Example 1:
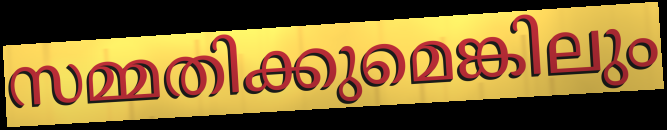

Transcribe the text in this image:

സമ്മതിക്കുമെങ്കിലും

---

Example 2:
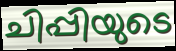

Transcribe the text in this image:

ചിപ്പിയുടെ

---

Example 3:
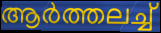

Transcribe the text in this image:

ആർത്തലച്ച്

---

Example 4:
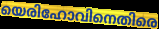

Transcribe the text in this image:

യെരിഹോവിനെതിരെ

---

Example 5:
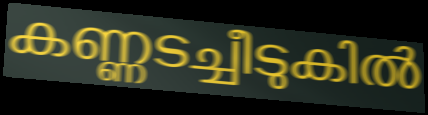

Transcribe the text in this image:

കണ്ണടച്ചീടുകിൽ